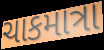
ચાકમાત્રા